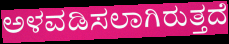
ಅಳವಡಿಸಲಾಗಿರುತ್ತದೆ